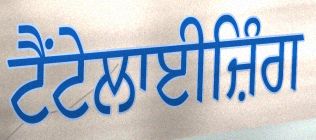
ਟੈਂਟੇਲਾਈਜ਼ਿੰਗ